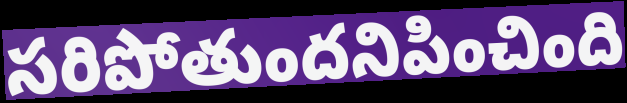
సరిపోతుందనిపించింది